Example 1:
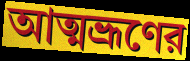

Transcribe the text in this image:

আত্মভ্রূণের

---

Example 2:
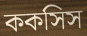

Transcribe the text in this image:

ককসিস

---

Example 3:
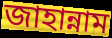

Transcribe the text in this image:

জাহান্নাম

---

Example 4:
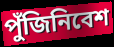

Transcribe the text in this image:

পুঁজিনিবেশ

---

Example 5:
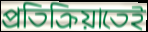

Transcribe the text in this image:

প্রতিক্রিয়াতেই